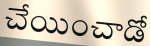
చేయించాడో